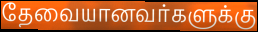
தேவையானவர்களுக்கு